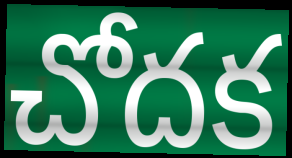
చోదక